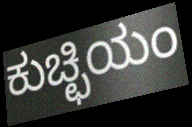
ಕುಚ್ಛಿಯಂ